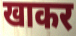
खाकर